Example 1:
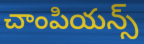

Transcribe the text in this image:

చాంపియన్స్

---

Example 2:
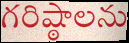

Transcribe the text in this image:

గరిష్ఠాలను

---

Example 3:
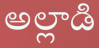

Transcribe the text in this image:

అల్లాడి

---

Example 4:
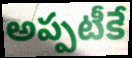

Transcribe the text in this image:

అప్పటీకే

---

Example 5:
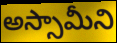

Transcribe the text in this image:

అస్సామీని